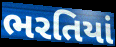
ભરતિયાં